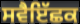
ਸਵੈਇੱਛਕ